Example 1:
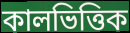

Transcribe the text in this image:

কালভিত্তিক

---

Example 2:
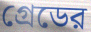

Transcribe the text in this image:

গ্রেডের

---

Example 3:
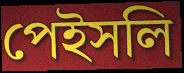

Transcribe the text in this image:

পেইসলি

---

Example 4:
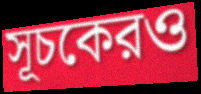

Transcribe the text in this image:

সূচকেরও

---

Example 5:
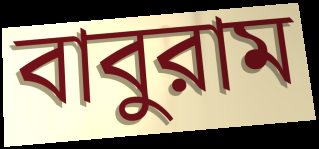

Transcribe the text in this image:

বাবুরাম